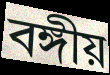
বঙ্গীয়